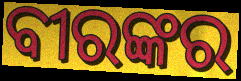
ବୀରଙ୍କର